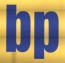
bp